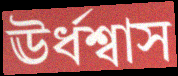
ঊর্ধশ্বাস